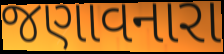
જણાવનારા